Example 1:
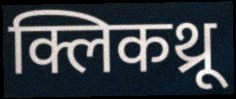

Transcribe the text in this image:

क्लिकथ्रू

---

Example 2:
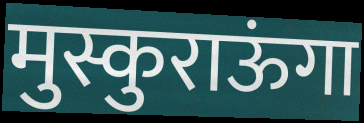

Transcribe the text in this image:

मुस्कुराऊंगा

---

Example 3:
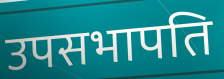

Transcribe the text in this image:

उपसभापति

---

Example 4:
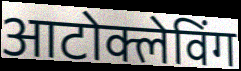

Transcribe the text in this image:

आटोक्लेविंग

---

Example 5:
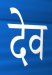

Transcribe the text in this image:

देव